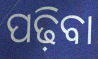
ପଢ଼ିବା